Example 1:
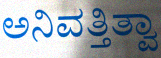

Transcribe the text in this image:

ಅನಿವತ್ತಿತ್ವಾ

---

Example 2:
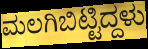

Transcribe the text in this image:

ಮಲಗಿಬಿಟ್ಟಿದ್ದಳು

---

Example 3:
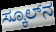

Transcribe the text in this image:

ಸ್ಕೂಲ್‌ನ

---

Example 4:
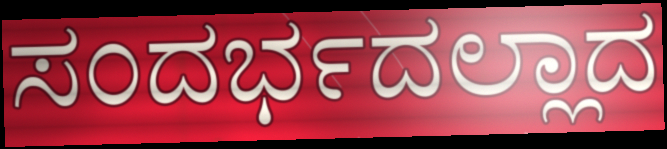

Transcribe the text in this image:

ಸಂದರ್ಭದಲ್ಲಾದ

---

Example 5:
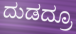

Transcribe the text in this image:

ದುಡದ್ರೂ